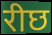
रीछ